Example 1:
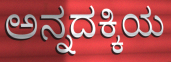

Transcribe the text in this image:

ಅನ್ನದಕ್ಕಿಯ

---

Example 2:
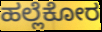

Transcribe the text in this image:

ಹಲ್ಲೆಕೋರ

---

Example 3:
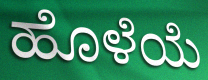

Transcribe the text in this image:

ಹೊಳೆಯೆ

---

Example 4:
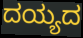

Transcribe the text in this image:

ದಯ್ಯದ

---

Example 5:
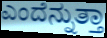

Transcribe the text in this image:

ಎಂದೆನ್ನುತ್ತಾ